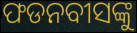
ଫଡନବୀସଙ୍କୁ